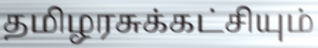
தமிழரசுக்கட்சியும்